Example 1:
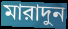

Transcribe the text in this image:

মারাদুন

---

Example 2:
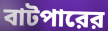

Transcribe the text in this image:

বাটপারের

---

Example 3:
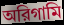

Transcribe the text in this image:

অরিগামি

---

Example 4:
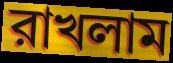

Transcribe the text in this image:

রাখলাম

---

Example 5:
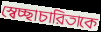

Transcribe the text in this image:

স্বেচ্ছাচারিতাকে